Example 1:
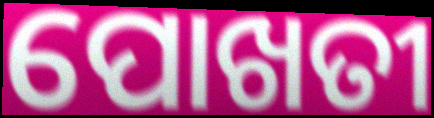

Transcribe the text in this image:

ପୋଖତୀ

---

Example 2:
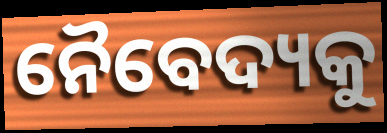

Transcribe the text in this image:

ନୈବେଦ୍ୟକୁ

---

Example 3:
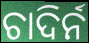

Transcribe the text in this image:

ଚାଦିର୍ନ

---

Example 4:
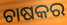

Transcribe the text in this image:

ଚାଷକର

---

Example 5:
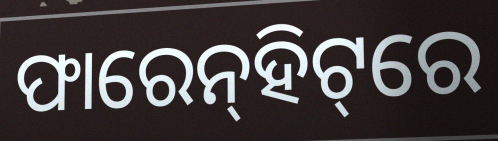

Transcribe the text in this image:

ଫାରେନ୍‌ହିଟ୍‌ରେ